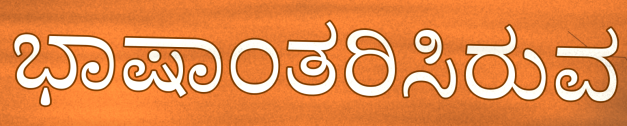
ಭಾಷಾಂತರಿಸಿರುವ